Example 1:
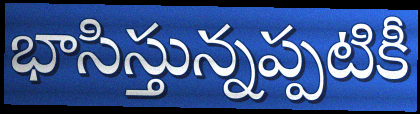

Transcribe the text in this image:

భాసిస్తున్నప్పటికీ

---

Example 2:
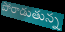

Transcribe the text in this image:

పోరాడుతున్న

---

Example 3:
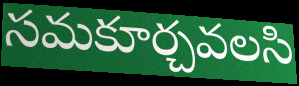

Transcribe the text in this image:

సమకూర్చవలసి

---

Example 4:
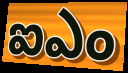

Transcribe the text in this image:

ఐఎం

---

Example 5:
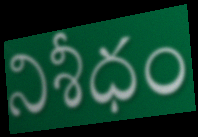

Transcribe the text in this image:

నిశీధం